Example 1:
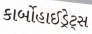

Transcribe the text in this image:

કાર્બોહાઈડ્રેટ્સ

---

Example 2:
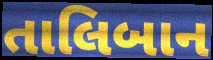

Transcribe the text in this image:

તાલિબાન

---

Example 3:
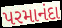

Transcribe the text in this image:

પરમાનંદા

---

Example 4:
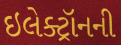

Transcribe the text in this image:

ઇલેક્ટ્રૉનની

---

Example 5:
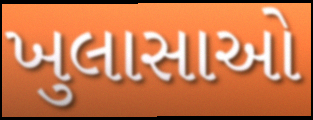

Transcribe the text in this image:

ખુલાસાઓ